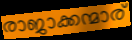
രാജാക്കന്മാര്